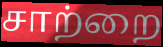
சாற்றை